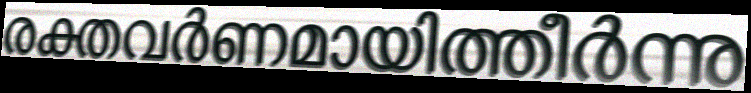
രക്തവർണമായിത്തീർന്നു